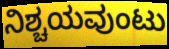
ನಿಶ್ಚಯವುಂಟು